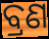
ବ୍ରଣ